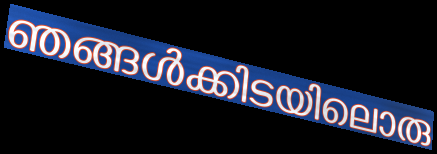
ഞങ്ങൾക്കിടയിലൊരു